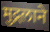
मुद्गलाने